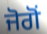
ਜੋਗੋਂ